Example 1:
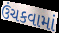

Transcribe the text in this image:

ઉંચકવામાં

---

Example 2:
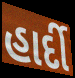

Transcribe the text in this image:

હાર્દી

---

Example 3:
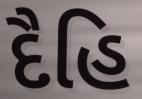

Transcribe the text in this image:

દૈહિ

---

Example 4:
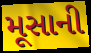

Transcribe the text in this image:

મૂસાની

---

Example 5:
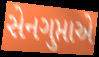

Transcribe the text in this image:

સેનગુપ્તાએ